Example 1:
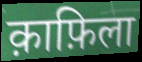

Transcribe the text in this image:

क़ाफ़िला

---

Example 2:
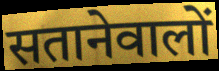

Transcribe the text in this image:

सतानेवालों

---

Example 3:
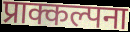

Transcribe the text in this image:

प्राक्कल्पना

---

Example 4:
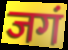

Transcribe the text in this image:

जगं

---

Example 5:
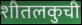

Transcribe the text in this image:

शीतलकुची